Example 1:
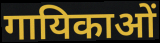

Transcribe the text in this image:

गायिकाओं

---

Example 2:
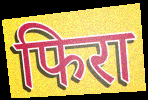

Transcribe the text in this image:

फिरा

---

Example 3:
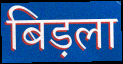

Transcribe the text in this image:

बिड़ला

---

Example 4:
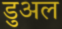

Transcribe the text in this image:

डुअल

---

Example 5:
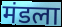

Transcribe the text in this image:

मंडला